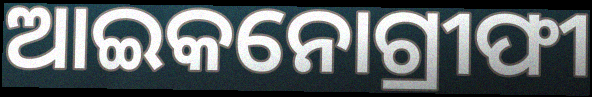
ଆଇକନୋଗ୍ରୀଫୀ